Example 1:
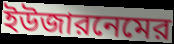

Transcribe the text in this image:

ইউজারনেমের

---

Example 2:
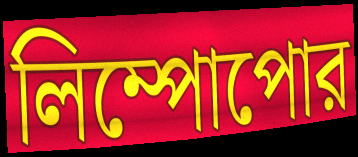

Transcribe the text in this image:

লিম্পোপোর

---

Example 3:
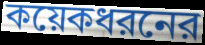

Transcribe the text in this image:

কয়েকধরনের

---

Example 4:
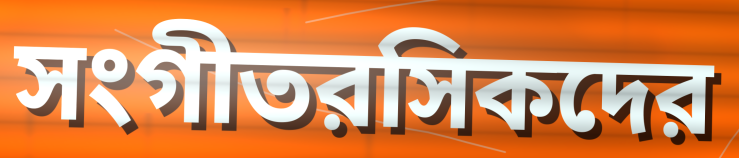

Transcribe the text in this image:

সংগীতরসিকদের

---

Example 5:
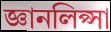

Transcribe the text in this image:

জ্ঞানলিপ্সা